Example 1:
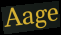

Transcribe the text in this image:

Aage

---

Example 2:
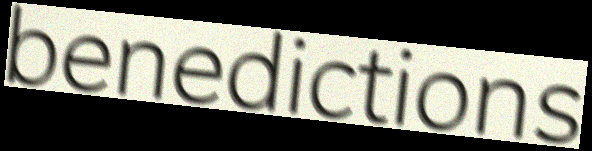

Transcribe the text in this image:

benedictions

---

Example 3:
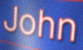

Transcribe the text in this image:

John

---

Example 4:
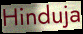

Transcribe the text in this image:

Hinduja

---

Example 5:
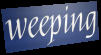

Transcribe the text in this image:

weeping